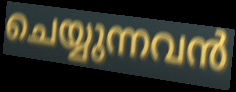
ചെയ്യുന്നവൻ